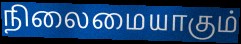
நிலைமையாகும்